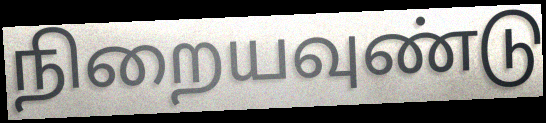
நிறையவுண்டு